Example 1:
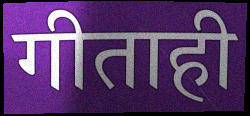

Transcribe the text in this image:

गीताही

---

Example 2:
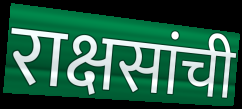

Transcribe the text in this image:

राक्षसांची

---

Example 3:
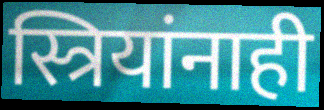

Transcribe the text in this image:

स्त्रियांनाही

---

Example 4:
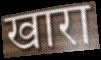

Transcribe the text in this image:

खारा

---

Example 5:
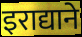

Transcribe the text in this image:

इराद्याने